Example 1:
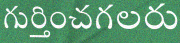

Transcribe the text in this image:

గుర్తించగలరు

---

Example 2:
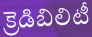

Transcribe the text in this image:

క్రెడిబిలిటీ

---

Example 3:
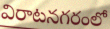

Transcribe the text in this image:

విరాటనగరంలో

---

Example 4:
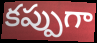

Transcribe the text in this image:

కప్పుగా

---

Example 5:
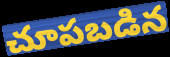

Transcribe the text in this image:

చూపబడిన